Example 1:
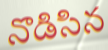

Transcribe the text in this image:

నొడిసిన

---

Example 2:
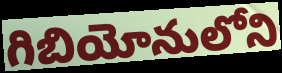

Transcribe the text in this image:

గిబియోనులోని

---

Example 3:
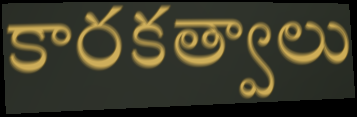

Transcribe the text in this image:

కారకత్వాలు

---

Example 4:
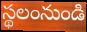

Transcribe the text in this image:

స్థలంనుండి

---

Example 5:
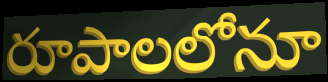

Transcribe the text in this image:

రూపాలలోనూ